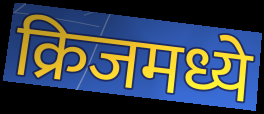
क्रिजमध्ये